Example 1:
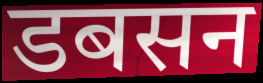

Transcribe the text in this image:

डबसन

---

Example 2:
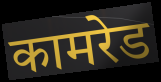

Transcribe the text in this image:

कामरेड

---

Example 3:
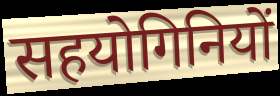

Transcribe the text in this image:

सहयोगिनियों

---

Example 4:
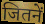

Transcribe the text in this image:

जितनें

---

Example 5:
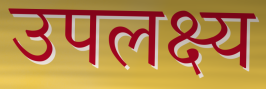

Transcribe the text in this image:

उपलक्ष्य